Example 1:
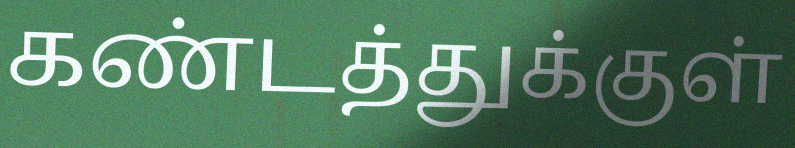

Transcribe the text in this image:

கண்டத்துக்குள்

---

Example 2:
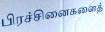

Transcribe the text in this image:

பிரச்சினைகளைத்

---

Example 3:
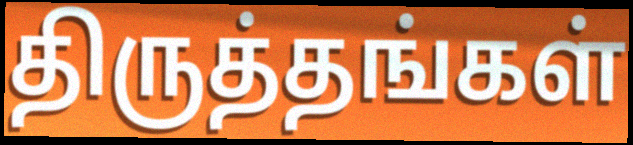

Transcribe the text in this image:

திருத்தங்கள்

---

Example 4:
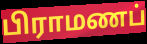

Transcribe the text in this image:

பிராமணப்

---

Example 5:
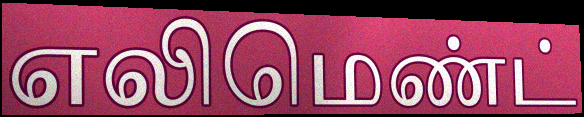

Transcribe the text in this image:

எலிமெண்ட்